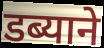
डब्याने